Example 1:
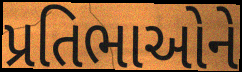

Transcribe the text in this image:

પ્રતિભાઓને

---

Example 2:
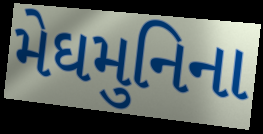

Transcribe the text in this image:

મેઘમુનિના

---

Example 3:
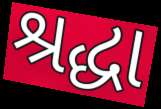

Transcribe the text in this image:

શ્રદ્ધા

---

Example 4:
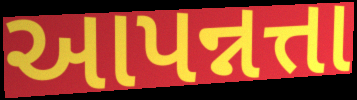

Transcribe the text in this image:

આપન્નત્તા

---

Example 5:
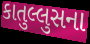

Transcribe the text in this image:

કાતુલ્લુસના